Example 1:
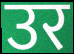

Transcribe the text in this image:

उर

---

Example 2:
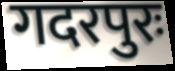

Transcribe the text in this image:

गदरपुरः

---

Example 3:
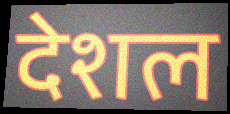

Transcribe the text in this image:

देशल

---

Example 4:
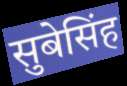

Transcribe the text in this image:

सुबेसिंह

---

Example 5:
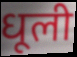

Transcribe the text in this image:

धूली